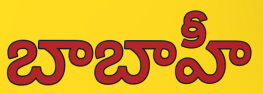
బాబాహీ